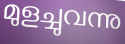
മുളച്ചുവന്നു